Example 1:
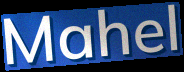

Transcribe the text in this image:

Mahel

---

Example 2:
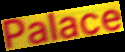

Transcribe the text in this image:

Palace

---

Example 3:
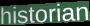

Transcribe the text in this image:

historian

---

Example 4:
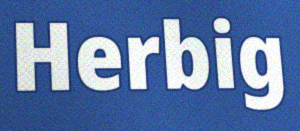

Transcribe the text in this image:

Herbig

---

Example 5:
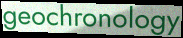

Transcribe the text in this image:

geochronology